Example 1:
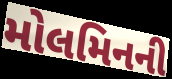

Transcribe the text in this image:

મોલમિનની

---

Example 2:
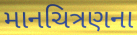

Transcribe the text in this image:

માનચિત્રણના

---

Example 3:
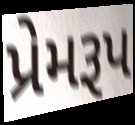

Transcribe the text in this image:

પ્રેમરૂપ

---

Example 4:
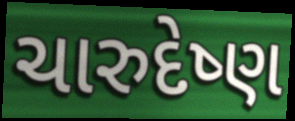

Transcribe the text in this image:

ચારુદેષ્ણ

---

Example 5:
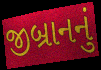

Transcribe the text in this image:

જીબ્રાનનું